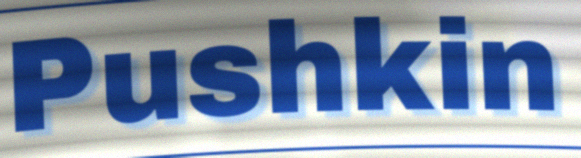
Pushkin